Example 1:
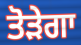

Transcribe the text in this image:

ਤੋੜੇਗਾ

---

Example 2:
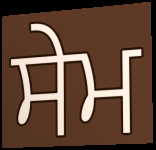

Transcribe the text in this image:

ਸੇਮ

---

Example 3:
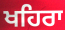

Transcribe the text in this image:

ਖਹਿਰਾ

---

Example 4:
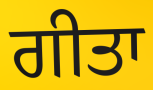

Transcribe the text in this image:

ਗੀਤਾ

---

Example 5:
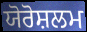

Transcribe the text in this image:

ਯੋਰੋਸ਼ਲਮ